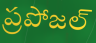
ప్రపోజల్